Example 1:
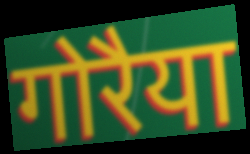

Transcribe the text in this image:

गोरैया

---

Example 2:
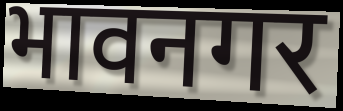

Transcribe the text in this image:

भावनगर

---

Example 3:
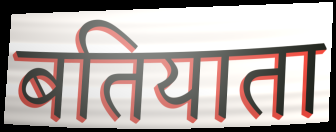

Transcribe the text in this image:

बतियाता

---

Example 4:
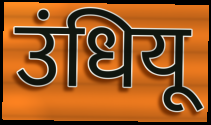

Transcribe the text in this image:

उंधियू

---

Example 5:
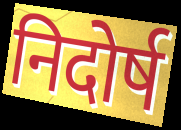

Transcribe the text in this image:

निदोर्ष